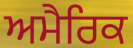
ਅਮੈਰਿਕ